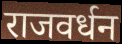
राजवर्धन